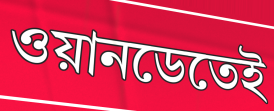
ওয়ানডেতেই